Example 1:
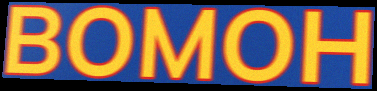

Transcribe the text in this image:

BOMOH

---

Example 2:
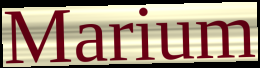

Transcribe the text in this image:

Marium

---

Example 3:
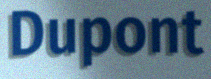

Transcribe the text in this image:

Dupont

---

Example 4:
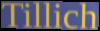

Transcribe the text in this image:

Tillich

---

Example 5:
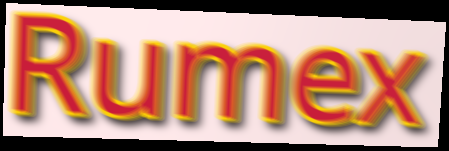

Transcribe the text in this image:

Rumex